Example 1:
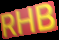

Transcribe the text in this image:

RHB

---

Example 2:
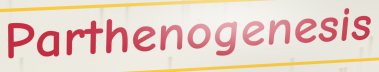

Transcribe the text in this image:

Parthenogenesis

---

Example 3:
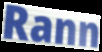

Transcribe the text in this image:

Rann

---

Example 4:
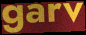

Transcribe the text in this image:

garv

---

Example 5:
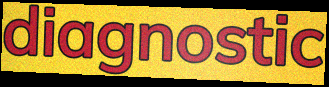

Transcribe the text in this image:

diagnostic